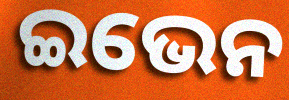
ଇଭେନ